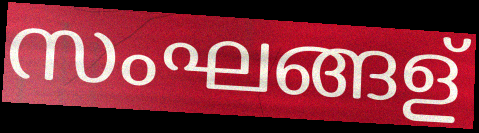
സംഘങ്ങള്